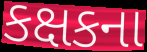
કક્ષકના